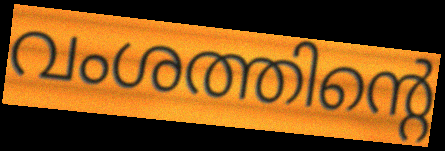
വംശത്തിന്റെ